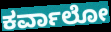
ಕರ್ವಾಲೋ